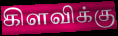
கிளவிக்கு